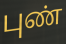
புண்